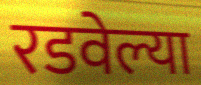
रडवेल्या